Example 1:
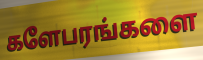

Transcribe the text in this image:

களேபரங்களை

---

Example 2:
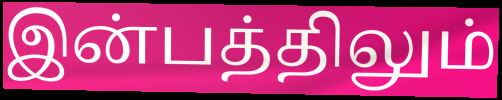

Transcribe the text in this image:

இன்பத்திலும்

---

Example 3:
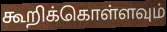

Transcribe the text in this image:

கூறிக்கொள்ளவும்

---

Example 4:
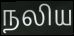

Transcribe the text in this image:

நலிய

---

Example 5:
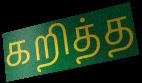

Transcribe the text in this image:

கறித்த